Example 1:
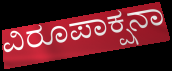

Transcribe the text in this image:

ವಿರೂಪಾಕ್ಷನಾ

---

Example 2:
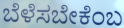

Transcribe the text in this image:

ಬೆಳೆಸಬೇಕೆಂಬ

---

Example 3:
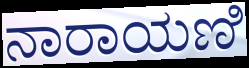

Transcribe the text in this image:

ನಾರಾಯಣಿ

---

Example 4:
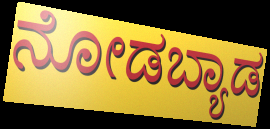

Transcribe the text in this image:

ನೋಡಬ್ಯಾಡ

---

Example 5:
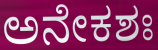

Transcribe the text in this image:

ಅನೇಕಶಃ